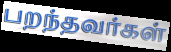
பறந்தவர்கள்